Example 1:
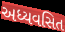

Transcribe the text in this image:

અધ્યવસિત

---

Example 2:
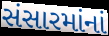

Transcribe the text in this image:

સંસારમાંનાં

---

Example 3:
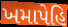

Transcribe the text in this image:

ખમાપેહિ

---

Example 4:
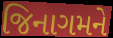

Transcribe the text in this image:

જિનાગમને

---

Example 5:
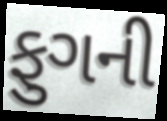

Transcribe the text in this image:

ફુગની